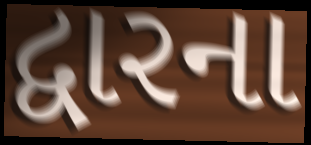
દ્વારના